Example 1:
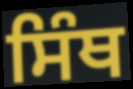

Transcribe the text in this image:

ਸਿੰਥ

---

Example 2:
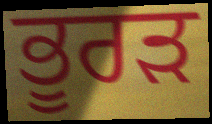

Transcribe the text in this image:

ਭੂਰੜ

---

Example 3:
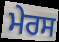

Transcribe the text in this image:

ਮੇਰਸ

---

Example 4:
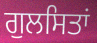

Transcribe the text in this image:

ਗੁਲਸਿਤਾਂ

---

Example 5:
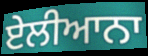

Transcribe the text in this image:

ਏਲੀਆਨਾ